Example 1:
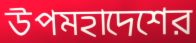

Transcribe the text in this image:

উপমহাদেশের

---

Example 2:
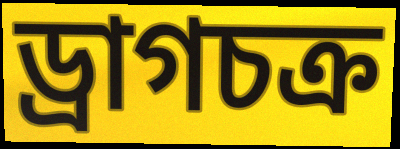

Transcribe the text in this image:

ড্রাগচক্র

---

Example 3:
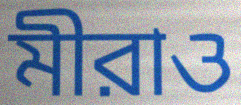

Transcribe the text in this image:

মীরাও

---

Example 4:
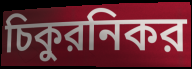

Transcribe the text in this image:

চিকুরনিকর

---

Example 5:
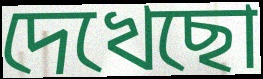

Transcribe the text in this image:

দেখেছো